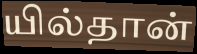
யில்தான்